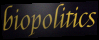
biopolitics